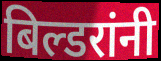
बिल्डरांनी